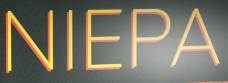
NIEPA